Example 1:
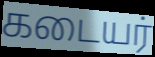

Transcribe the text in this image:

கடையர்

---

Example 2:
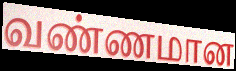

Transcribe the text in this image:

வண்ணமான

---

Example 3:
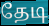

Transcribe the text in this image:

தேடி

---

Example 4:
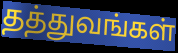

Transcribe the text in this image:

தத்துவங்கள்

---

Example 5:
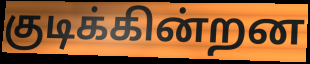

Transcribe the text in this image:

குடிக்கின்றன